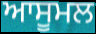
ਆਸੂਮਲ